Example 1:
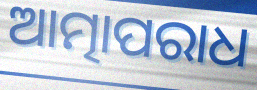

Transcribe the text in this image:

ଆତ୍ମାପରାଧ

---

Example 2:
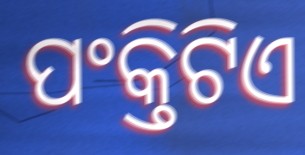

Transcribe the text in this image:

ପଂକ୍ତିଟିଏ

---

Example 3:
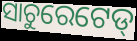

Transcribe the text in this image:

ସାଚୁରେଟେଡ୍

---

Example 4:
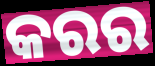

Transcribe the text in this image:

କରର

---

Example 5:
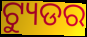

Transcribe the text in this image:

ଟ୍ୟୁଡର